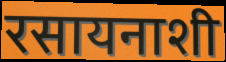
रसायनाशी